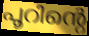
പൂറിന്റെ